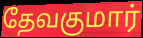
தேவகுமார்